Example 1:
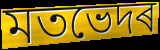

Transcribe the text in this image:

মতভেদৰ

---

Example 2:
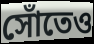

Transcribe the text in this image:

সোঁতেও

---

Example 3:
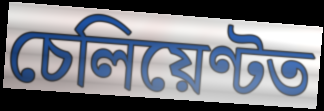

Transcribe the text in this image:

চেলিয়েণ্টত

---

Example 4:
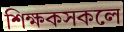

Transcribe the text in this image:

শিক্ষকসকলে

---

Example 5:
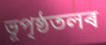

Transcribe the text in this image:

ভূপৃষ্ঠতলৰ